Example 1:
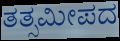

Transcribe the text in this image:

ತತ್ಸಮೀಪದ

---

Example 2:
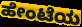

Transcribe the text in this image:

ಹೇಂಟೆಯ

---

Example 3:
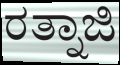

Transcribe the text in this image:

ರತ್ನಾಜಿ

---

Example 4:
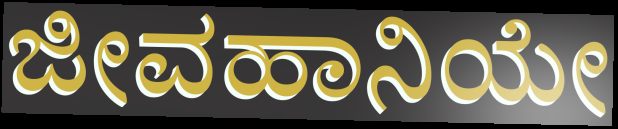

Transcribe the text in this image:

ಜೀವಹಾನಿಯೇ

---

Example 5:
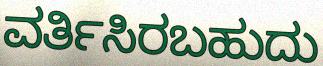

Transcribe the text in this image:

ವರ್ತಿಸಿರಬಹುದು